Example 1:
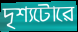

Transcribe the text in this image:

দৃশ্যটোৱে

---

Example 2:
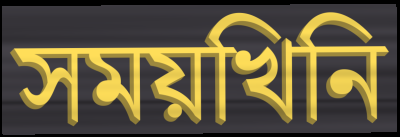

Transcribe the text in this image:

সময়খিনি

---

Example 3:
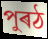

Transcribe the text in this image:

পুৰঠ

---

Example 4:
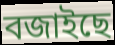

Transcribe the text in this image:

বজাইছে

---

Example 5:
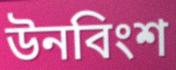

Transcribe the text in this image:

উনবিংশ